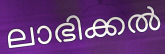
ലാഭിക്കൽ